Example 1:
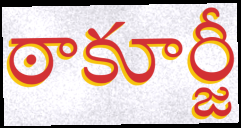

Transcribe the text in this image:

ఠాకూర్జీ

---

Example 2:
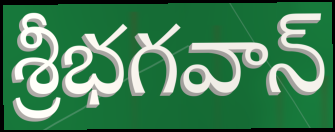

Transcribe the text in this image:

శ్రీభగవాన్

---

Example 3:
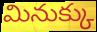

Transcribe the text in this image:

మినుక్కు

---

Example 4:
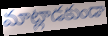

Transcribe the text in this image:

మాట్లాడకుండా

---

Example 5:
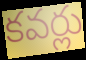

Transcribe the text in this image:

కవర్లు